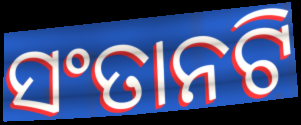
ସଂତାନଟି